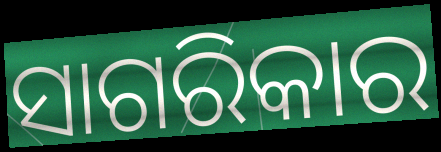
ସାଗରିକାର